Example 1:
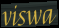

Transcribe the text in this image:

viswa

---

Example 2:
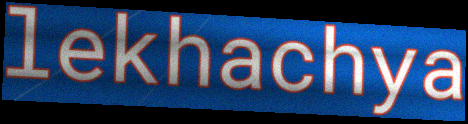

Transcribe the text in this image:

lekhachya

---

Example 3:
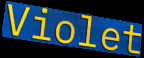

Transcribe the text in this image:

Violet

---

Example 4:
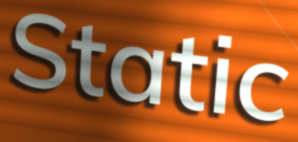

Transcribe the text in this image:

Static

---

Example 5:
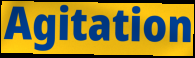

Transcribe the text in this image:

Agitation